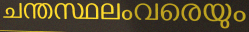
ചന്തസ്ഥലംവരെയും